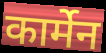
कार्मेन